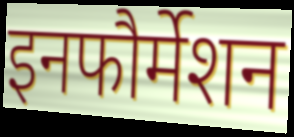
इनफौर्मेशन